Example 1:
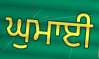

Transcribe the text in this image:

ਘੁਮਾਈ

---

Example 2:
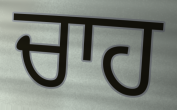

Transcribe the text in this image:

ਚਾਹ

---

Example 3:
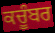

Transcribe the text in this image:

ਕਚੂੰਬਰ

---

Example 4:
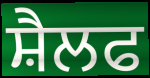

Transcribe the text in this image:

ਸ਼ੈਲਫ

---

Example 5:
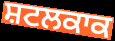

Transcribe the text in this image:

ਸ਼ਟਲਕਾਕ